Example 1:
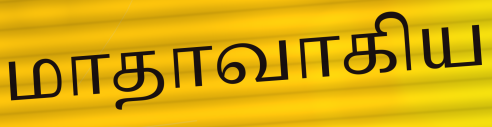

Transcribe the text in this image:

மாதாவாகிய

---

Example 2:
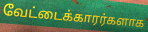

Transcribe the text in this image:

வேட்டைக்காரர்களாக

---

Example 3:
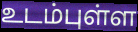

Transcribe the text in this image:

உடம்புள்ள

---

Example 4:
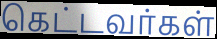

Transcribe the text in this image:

கெட்டவர்கள்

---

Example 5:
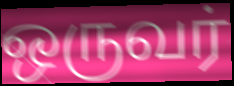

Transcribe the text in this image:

ஒருவர்